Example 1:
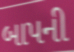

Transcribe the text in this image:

બાપની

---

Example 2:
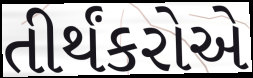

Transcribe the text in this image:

તીર્થંકરોએ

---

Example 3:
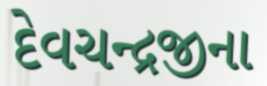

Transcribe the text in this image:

દેવચન્દ્રજીના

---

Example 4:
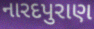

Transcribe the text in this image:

નારદપુરાણ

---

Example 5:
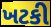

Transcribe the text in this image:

ખટકી